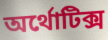
অর্থোটিক্স